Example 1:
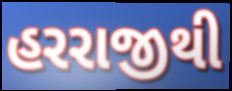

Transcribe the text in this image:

હરરાજીથી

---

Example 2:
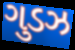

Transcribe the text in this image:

ગુડઝ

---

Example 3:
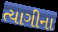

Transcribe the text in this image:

ત્યાગીના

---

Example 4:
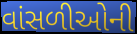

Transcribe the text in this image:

વાંસળીઓની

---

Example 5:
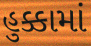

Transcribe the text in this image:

હુક્કામાં